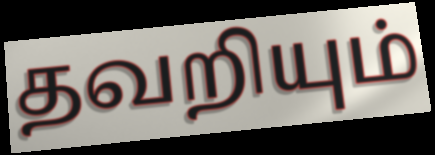
தவறியும்